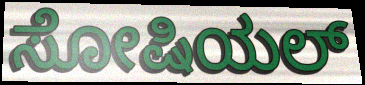
ಸೋಷಿಯಲ್